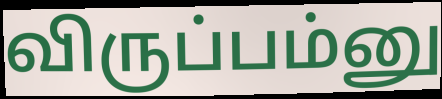
விருப்பம்னு